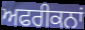
ਅਫਰੀਕਨਾਂ